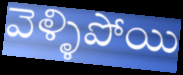
వెళ్ళిపోయి